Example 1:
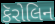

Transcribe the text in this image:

કૅરોલિન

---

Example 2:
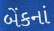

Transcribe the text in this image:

બેંકનાં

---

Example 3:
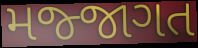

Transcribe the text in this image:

મજ્જાગત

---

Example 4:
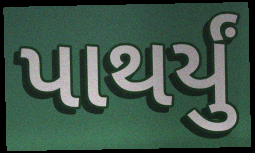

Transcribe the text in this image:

પાથર્યું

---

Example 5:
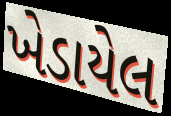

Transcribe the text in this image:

ખેડાયેલ